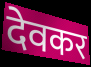
देवकर